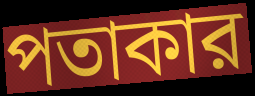
পতাকার